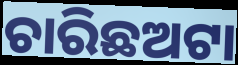
ଚାରିଛଅଟା